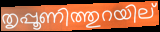
തൃപ്പൂണിത്തുറയില്